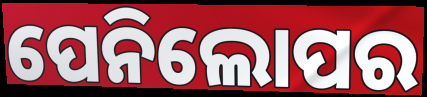
ପେନିଲୋପର